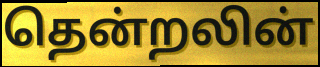
தென்றலின்